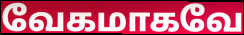
வேகமாகவே